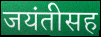
जयंतीसह